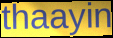
thaayin